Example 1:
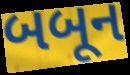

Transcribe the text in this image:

બબૂન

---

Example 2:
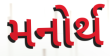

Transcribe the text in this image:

મનોર્થ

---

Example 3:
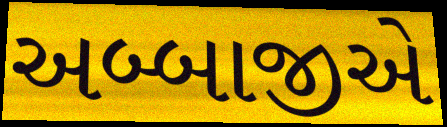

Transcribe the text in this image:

અબ્બાજીએ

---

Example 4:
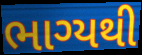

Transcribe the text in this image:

ભાગ્યથી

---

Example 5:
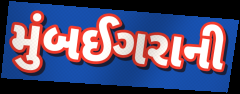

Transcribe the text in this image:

મુંબઈગરાની